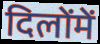
दिलोंमें